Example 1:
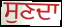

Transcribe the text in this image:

ਸੁਣਦਾ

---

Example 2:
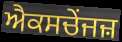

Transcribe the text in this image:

ਐਕਸਚੇਂਜਜ਼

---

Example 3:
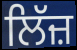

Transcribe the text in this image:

ਲਿੱਜ਼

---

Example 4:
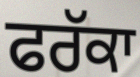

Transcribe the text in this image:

ਫਰੱਕਾ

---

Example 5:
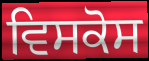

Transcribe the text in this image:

ਵਿਸਕੋਸ